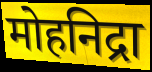
मोहनिद्रा